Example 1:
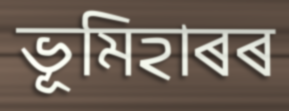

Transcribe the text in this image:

ভূমিহাৰৰ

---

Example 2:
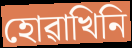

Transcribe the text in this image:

হোৱাখিনি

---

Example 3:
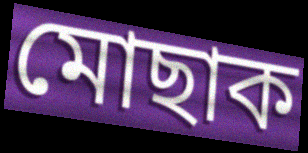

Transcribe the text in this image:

মোছাক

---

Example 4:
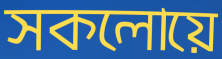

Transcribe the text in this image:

সকলোয়ে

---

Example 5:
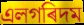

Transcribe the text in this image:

এলগৰিদম